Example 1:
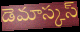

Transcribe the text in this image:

డెమాస్కస్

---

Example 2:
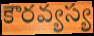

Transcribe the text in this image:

కౌరవ్యస్య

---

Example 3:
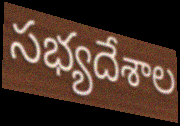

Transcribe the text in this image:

సభ్యదేశాల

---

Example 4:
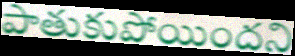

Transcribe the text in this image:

పాతుకుపోయిందని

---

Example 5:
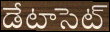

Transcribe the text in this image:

డేటాసెట్